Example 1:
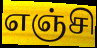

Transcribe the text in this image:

எஞ்சி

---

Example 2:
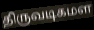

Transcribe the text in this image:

திருவடிகமள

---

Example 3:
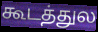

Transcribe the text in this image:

கூடத்துல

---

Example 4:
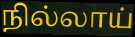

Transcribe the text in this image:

நில்லாய்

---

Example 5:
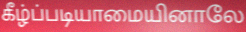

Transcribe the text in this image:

கீழ்ப்படியாமையினாலே